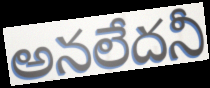
అనలేదనీ